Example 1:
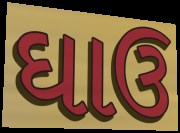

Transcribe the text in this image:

ઘાઉ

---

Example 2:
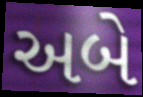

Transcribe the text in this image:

અબે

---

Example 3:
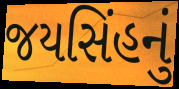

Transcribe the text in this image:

જયસિંહનું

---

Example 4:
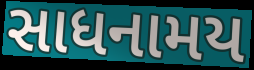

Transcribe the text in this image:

સાધનામય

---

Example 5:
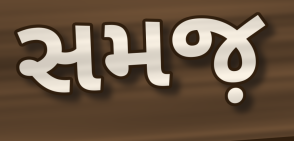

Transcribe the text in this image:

સમજ઼